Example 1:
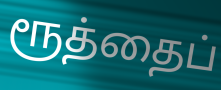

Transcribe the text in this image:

ரூத்தைப்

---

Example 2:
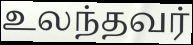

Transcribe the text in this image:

உலந்தவர்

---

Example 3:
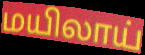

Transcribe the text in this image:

மயிலாய்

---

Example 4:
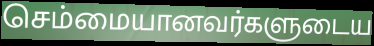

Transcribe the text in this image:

செம்மையானவர்களுடைய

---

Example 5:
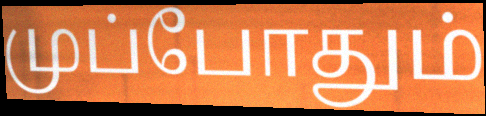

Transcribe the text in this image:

முப்போதும்